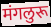
मंगलुरू